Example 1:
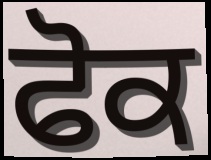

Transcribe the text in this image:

ਫੋਕ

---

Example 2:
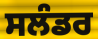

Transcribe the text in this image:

ਸਲੰਡਰ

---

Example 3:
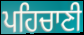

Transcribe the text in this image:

ਪਹਿਚਾਣੀ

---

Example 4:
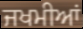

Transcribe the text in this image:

ਜਖਮੀਆਂ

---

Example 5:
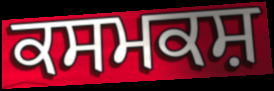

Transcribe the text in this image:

ਕਸਮਕਸ਼